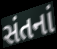
સંતનાં